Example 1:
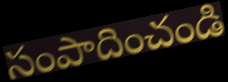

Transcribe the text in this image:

సంపాదించండి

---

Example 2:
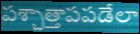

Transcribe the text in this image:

పశ్చాత్తాపపడేలా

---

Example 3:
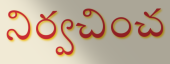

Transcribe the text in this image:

నిర్వచించ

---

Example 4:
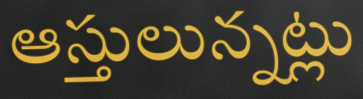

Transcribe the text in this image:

ఆస్తులున్నట్లు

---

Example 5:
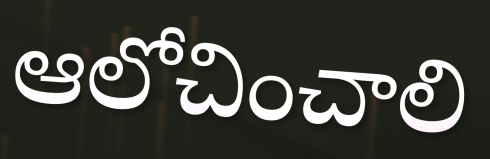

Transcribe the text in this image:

ఆలోచించాలి